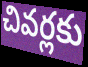
చివర్లకు